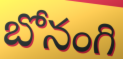
బోనంగి